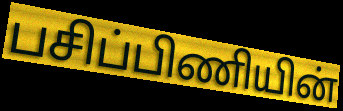
பசிப்பிணியின்